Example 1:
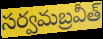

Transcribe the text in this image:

సర్వమబ్రవీత్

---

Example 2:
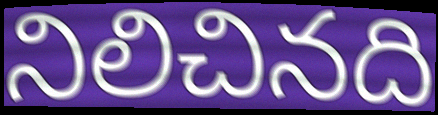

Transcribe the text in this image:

నిలిచినది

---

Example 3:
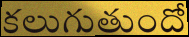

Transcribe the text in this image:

కలుగుతుందో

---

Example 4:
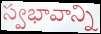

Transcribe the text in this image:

స్వభావాన్ని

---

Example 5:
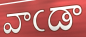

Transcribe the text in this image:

వాఁడా